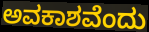
ಅವಕಾಶವೆಂದು